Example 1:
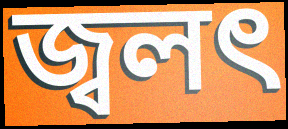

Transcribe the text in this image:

জ্বলৎ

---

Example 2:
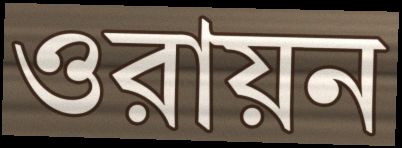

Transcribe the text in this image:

ওরায়ন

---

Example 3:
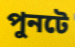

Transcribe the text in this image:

পুনটে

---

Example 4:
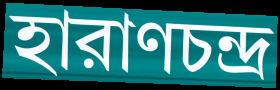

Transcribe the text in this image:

হারাণচন্দ্র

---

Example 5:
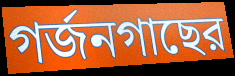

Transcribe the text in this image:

গর্জনগাছের